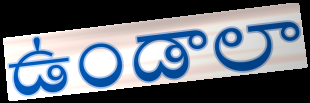
ఉండాలా